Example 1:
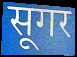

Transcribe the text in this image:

सूगर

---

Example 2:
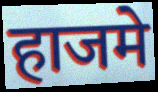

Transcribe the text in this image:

हाजमे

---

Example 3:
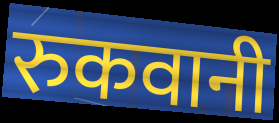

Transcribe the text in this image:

रुकवानी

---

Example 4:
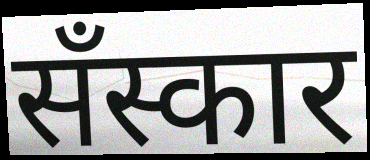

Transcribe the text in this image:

सँस्कार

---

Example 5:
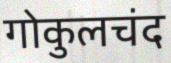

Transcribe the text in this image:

गोकुलचंद